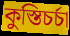
কুস্তিচর্চা